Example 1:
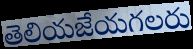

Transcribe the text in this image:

తెలియజేయగలరు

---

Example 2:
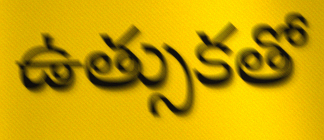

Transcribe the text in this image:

ఉత్సుకతో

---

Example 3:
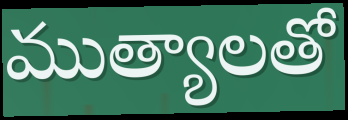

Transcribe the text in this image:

ముత్యాలతో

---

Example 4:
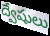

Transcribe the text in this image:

ద్వేషులు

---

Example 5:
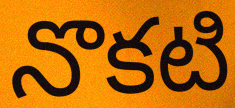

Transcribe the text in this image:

నొకటి